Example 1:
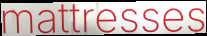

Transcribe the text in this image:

mattresses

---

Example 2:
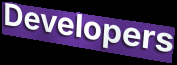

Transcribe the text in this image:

Developers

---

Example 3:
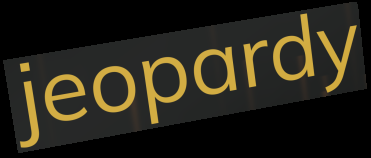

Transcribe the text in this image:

jeopardy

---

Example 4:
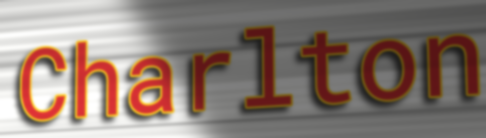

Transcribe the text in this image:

Charlton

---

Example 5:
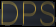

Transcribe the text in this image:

DPS